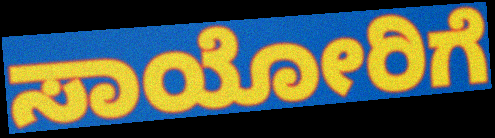
ಸಾಯೋರಿಗೆ